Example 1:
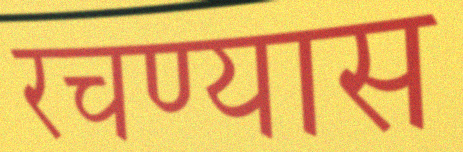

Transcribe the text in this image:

रचण्यास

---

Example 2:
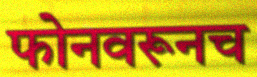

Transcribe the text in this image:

फोनवरूनच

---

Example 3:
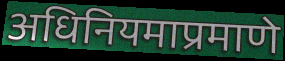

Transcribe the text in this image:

अधिनियमाप्रमाणे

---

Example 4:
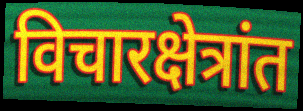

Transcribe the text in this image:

विचारक्षेत्रांत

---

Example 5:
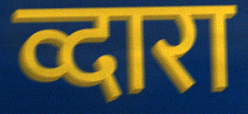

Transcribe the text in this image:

व्दारा